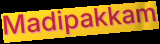
Madipakkam